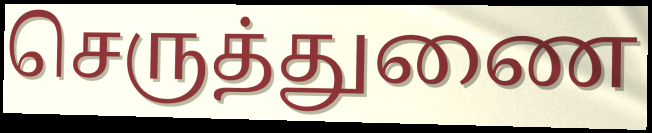
செருத்துணை